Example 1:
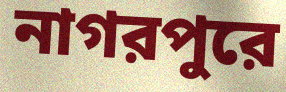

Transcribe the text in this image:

নাগরপুরে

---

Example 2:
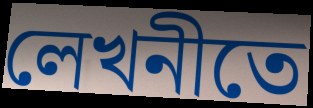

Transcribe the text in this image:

লেখনীতে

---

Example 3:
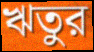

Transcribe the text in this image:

ঋতুর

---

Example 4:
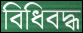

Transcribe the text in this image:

বিধিবদ্ধ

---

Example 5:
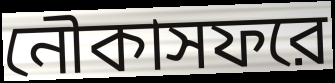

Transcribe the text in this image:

নৌকাসফরে